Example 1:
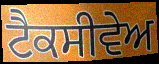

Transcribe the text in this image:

ਟੈਕਸੀਵੇਅ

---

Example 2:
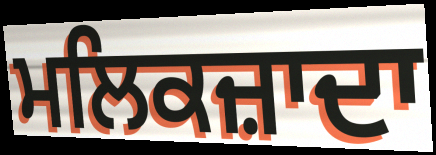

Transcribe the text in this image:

ਮਲਿਕਜ਼ਾਦਾ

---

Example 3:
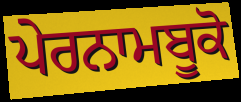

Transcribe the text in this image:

ਪੇਰਨਾਮਬੂਕੋ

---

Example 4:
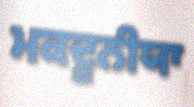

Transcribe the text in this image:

ਮਕਦੂਨੀਯਾ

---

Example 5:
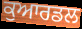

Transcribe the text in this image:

ਕੁਆਰਡਲ